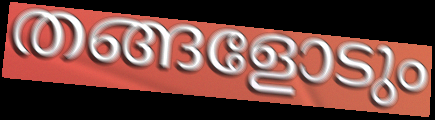
തങ്ങളോടും